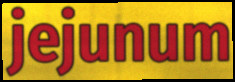
jejunum